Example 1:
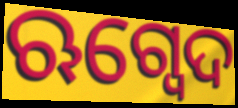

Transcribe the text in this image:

ଋଗ୍ବେଦ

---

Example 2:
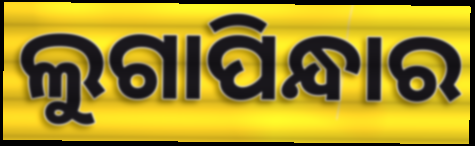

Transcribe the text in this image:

ଲୁଗାପିନ୍ଧାର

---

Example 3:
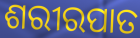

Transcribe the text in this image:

ଶରୀରପାତ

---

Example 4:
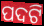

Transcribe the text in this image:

ପଦଟି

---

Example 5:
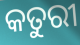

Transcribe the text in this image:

କତୁରୀ